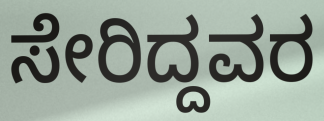
ಸೇರಿದ್ದವರ